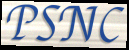
PSNC